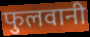
फुलवानी